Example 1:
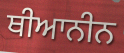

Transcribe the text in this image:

ਥੀਆਨੀਨ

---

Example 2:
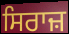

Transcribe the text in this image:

ਸਿਰਾਜ਼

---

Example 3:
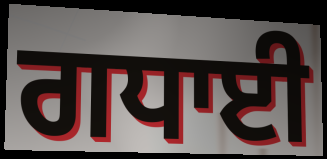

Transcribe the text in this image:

ਗਧਾਈ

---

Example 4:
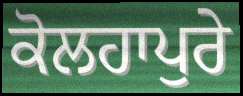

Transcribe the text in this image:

ਕੋਲਹਾਪੁਰੇ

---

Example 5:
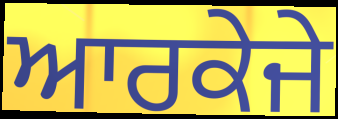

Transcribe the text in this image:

ਆਰਕੇਜੇ